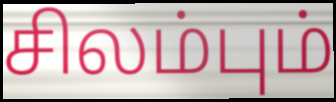
சிலம்பும்